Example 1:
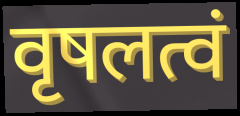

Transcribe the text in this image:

वृषलत्वं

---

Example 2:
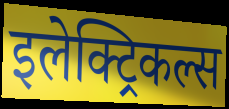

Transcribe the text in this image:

इलेक्ट्रिकल्स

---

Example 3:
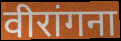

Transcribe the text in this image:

वीरांगना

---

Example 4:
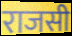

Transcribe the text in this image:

राजसी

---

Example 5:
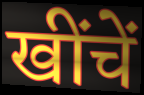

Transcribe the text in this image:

खींचें